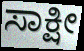
ಸಾಕ್ಷೀ